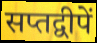
सप्तद्वीपें